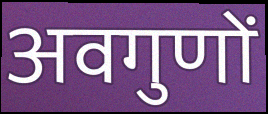
अवगुणों